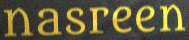
nasreen